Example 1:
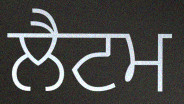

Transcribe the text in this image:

ਲੈਟਮ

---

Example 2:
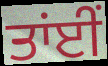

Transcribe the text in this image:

ਤਾਂਈਂ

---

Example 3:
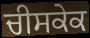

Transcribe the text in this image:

ਚੀਸਕੇਕ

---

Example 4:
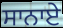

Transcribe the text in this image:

ਸਾਨਾਏ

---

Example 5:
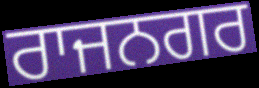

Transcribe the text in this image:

ਰਾਜਨਗਰ